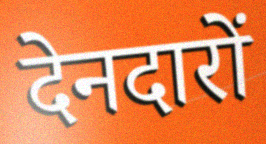
देनदारों